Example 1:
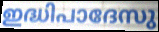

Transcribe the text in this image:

ഇദ്ധിപാദേസു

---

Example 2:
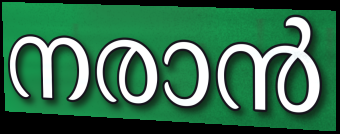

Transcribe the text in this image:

നരാൻ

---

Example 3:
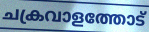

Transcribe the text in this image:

ചക്രവാളത്തോട്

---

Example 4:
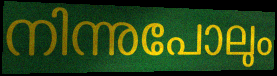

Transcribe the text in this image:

നിന്നുപോലും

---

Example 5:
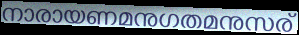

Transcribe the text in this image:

നാരായണമനുഗതമനുസര്